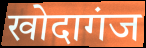
खोदागंज